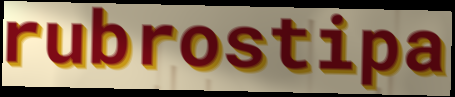
rubrostipa